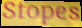
Stopes